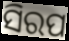
ସିରପ